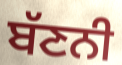
ਬੱਣਨੀ